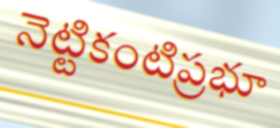
నెట్టికంటిప్రభూ